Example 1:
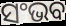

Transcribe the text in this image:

ସଂଭବ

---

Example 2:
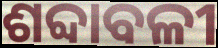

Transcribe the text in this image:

ଶବ୍ଦାବଳୀ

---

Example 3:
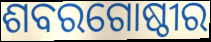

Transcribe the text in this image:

ଶବରଗୋଷ୍ଠୀର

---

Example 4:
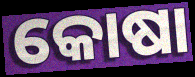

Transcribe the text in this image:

କୋଷା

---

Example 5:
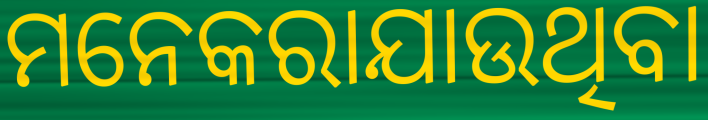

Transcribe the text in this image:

ମନେକରାଯାଉଥିବା